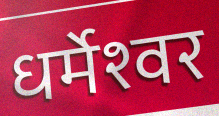
धर्मेश्वर